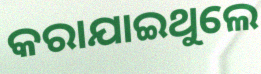
କରାଯାଇଥୁଲେ